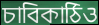
চাবিকাঠিও